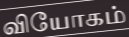
வியோகம்